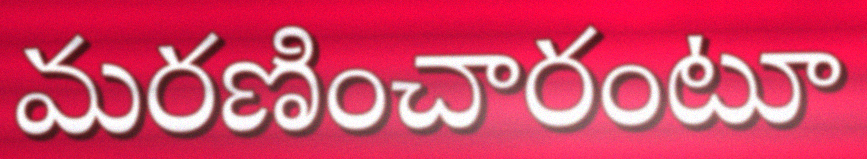
మరణించారంటూ